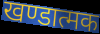
खण्डात्मक